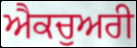
ਐਕਚੁਅਰੀ